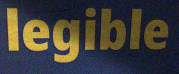
legible